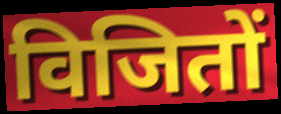
विजितों